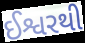
ઈશ્વરથી